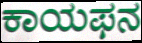
ಕಾಯಫನ